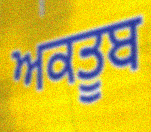
ਅਕਤੂਬ